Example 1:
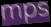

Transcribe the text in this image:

mps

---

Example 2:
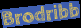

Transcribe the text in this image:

Brodribb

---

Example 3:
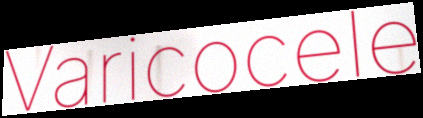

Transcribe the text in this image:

Varicocele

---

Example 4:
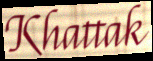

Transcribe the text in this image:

Khattak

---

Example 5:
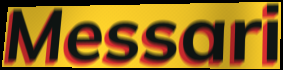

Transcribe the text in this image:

Messari